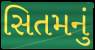
સિતમનું